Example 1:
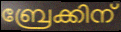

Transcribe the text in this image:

ബ്രേക്കിന്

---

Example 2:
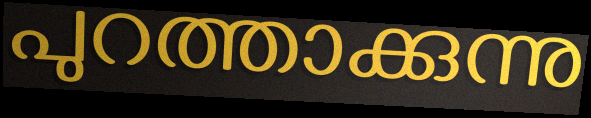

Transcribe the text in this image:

പുറത്താക്കുന്നു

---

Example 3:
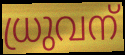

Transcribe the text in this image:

ധ്രുവന്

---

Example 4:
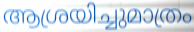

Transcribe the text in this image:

ആശ്രയിച്ചുമാത്രം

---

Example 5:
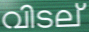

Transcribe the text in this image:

വിടല്